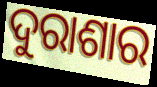
ଦୁରାଶାର